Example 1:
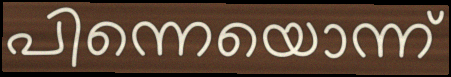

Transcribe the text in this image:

പിന്നെയൊന്ന്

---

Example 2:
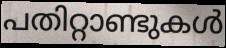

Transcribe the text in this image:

പതിറ്റാണ്ടുകൾ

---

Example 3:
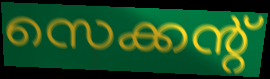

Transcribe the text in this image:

സെക്കന്റ്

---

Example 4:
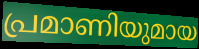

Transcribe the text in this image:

പ്രമാണിയുമായ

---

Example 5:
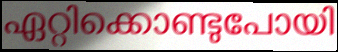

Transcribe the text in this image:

ഏറ്റിക്കൊണ്ടുപോയി